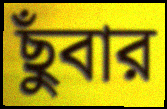
ছুঁবার